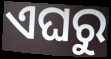
ଏଘରୁ